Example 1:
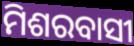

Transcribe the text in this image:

ମିଶରବାସୀ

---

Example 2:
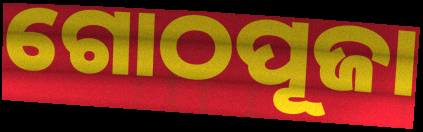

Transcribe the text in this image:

ଗୋଠପୂଜା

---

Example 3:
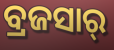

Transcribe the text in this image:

ବ୍ରଜସାର୍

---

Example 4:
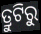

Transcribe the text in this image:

ତ୍ରୁଟିରୁ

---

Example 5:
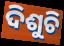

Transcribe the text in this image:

ଦିଶୁଚି